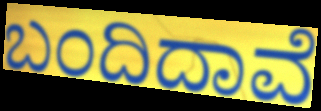
ಬಂದಿದಾವೆ